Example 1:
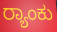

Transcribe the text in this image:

ರ್‍ಯಾಂಕು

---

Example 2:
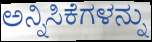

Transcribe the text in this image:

ಅನ್ನಿಸಿಕೆಗಳನ್ನು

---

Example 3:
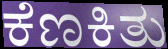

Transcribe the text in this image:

ಕೆಣಕಿತು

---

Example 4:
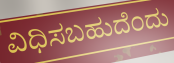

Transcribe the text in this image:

ವಿಧಿಸಬಹುದೆಂದು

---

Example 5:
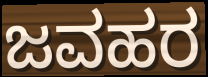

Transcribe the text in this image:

ಜವಹರ